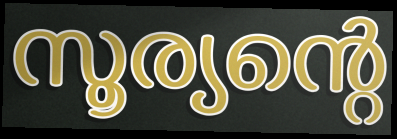
സൂര്യന്റെ